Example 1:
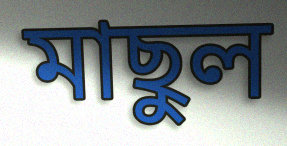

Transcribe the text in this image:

মাছুল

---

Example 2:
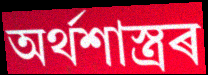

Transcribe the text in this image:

অৰ্থশাস্ত্ৰৰ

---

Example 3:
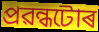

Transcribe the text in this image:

প্ৰৱন্ধটোৰ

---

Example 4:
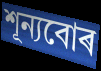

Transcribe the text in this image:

শূন্যবোৰ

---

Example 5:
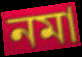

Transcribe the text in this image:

নমা